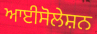
ਆਈਸੋਲੇਸ਼ਨ